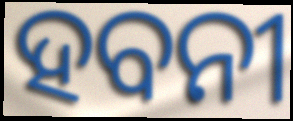
ହବନୀ